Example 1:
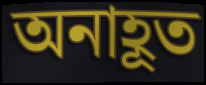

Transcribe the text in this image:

অনাহূত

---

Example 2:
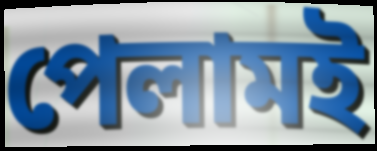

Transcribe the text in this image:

পেলামই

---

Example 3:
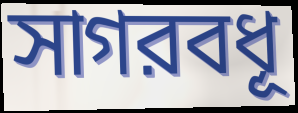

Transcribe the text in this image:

সাগরবধূ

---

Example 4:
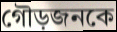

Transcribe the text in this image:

গৌড়জনকে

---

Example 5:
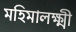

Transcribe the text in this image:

মহিমালক্ষ্মী